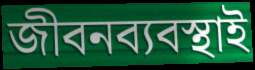
জীবনব্যবস্থাই